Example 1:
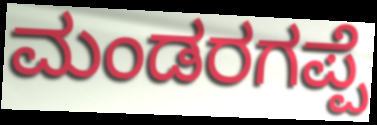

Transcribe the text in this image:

ಮಂಡರಗಪ್ಪೆ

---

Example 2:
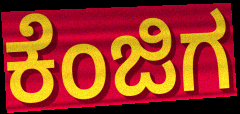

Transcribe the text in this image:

ಕೆಂಜಿಗ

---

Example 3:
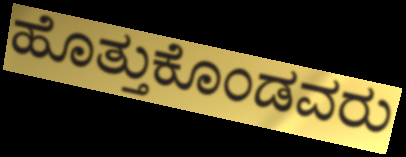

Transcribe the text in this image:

ಹೊತ್ತುಕೊಂಡವರು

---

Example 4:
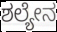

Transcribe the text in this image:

ಶಲ್ಯೇನ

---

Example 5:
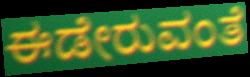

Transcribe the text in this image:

ಈಡೇರುವಂತೆ